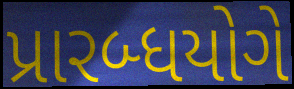
પ્રારબ્ધયોગે